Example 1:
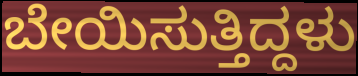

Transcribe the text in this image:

ಬೇಯಿಸುತ್ತಿದ್ದಳು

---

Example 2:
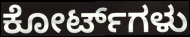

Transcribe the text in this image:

ಕೋರ್ಟ್‌ಗಳು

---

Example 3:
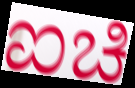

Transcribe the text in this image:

ಐಚಿ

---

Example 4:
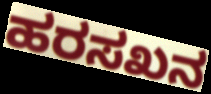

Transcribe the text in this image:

ಹರಸಖನ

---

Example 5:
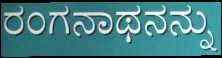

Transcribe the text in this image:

ರಂಗನಾಥನನ್ನು